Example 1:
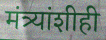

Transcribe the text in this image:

मंत्र्यांशीही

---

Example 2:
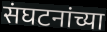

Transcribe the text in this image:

संघटनांच्या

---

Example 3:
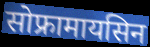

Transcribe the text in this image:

सोफ्रामायसिन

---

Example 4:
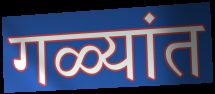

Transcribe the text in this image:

गळ्यांत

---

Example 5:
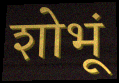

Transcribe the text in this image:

शोभूं